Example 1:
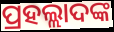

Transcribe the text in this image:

ପ୍ରହଲ୍ଲାଦଙ୍କ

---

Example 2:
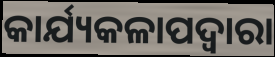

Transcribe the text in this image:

କାର୍ଯ୍ୟକଳାପଦ୍ୱାରା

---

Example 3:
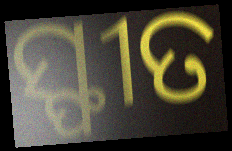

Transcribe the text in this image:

ସ୍ଫୀତ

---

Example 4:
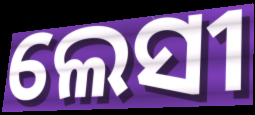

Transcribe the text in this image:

ଲେସୀ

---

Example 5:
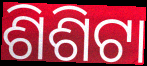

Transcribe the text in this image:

ଶିଶିଟା